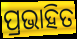
ପ୍ରଭାହିତ